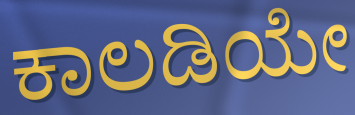
ಕಾಲಡಿಯೇ